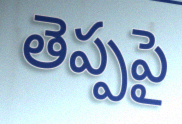
తెప్పపై